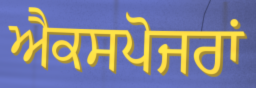
ਐਕਸਪੋਜਰਾਂ